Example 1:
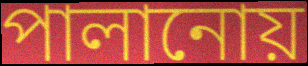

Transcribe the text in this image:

পালানোয়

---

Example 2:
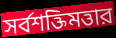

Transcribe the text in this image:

সর্বশক্তিমত্তার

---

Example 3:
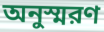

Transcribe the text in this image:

অনুস্মরণ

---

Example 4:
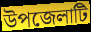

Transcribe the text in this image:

উপজেলাটি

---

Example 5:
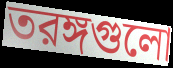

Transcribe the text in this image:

তরঙ্গগুলো